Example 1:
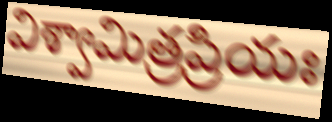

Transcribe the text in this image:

విశ్వామిత్రప్రియః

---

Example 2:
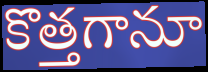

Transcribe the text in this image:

కొత్తగానూ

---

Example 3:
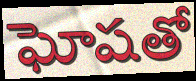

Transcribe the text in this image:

ఘోషతో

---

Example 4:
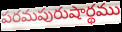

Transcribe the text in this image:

పరమపురుషార్థము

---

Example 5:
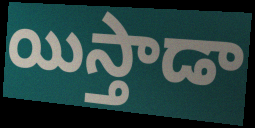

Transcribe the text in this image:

యిస్తాడా